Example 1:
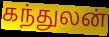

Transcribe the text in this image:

கந்துலன்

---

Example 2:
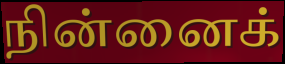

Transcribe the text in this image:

நின்னைக்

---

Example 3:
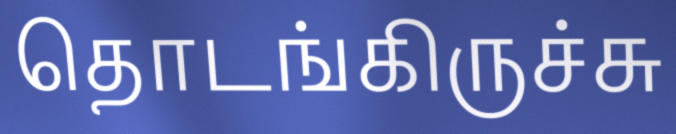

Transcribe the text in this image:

தொடங்கிருச்சு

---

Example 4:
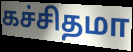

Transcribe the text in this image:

கச்சிதமா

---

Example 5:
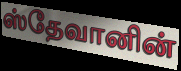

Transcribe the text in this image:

ஸ்தேவானின்